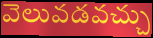
వెలువడవచ్చు